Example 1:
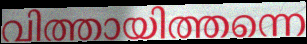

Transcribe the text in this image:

വിത്തായിത്തന്നെ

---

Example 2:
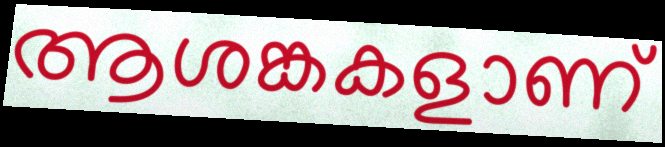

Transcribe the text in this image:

ആശങ്കകളാണ്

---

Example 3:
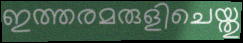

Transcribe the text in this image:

ഇത്തരമരുളിചെയ്തു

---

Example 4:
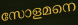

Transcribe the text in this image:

സോളമനെ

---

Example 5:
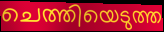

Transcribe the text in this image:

ചെത്തിയെടുത്ത